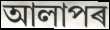
আলাপৰ